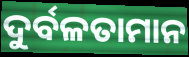
ଦୁର୍ବଳତାମାନ